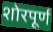
शोरपूर्ण